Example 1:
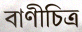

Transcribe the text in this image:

বাণীচিত্র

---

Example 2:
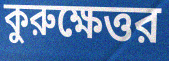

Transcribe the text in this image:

কুরুক্ষেত্তর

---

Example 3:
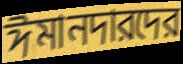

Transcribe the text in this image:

ঈমানদারদের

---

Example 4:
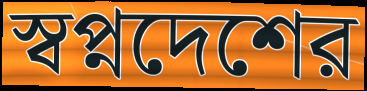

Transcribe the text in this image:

স্বপ্নদেশের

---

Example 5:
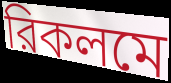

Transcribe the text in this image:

রিকলমে